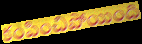
కంపించిపోయింది